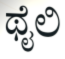
ಥೈಲಿ